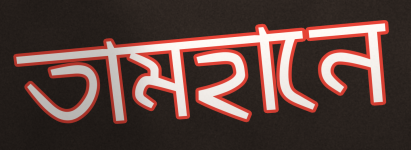
তামহানে